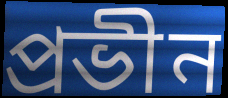
প্রভীন